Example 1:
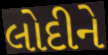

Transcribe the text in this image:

લોદીને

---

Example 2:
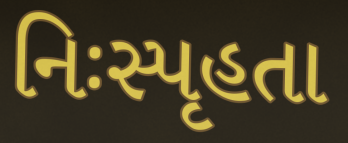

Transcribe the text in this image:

નિઃસ્પૃહતા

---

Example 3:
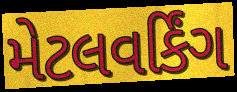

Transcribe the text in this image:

મેટલવર્કિંગ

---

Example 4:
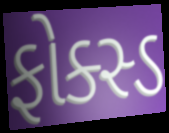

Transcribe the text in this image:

ફોક્સ્ડ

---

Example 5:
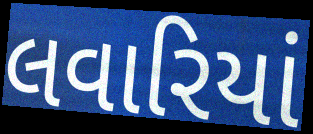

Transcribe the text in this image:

લવારિયાં